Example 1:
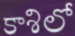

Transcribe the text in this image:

కాశిలో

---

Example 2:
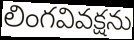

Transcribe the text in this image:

లింగవివక్షను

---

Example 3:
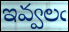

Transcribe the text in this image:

ఇవ్వలఁ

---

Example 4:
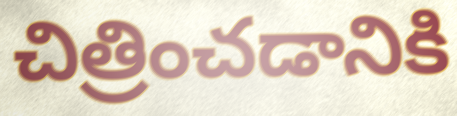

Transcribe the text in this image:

చిత్రించడానికి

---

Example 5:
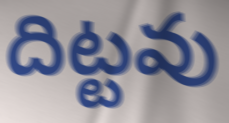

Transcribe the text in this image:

దిట్టవు